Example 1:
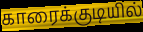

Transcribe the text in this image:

காரைக்குடியில்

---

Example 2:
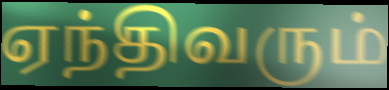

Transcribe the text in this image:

ஏந்திவரும்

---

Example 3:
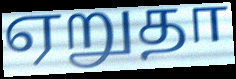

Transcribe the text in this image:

ஏறுதா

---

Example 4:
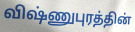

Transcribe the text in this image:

விஷ்ணுபுரத்தின்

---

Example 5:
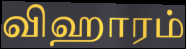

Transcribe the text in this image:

விஹாரம்